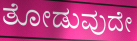
ತೋಡುವುದೇ